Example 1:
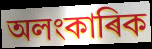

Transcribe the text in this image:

অলংকাৰিক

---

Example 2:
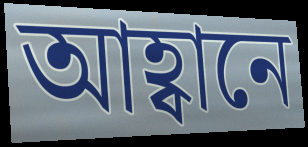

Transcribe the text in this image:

আহ্বানে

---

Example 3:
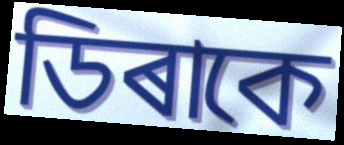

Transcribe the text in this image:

ডিৰাকে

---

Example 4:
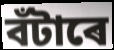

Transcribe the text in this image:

বঁটাৰে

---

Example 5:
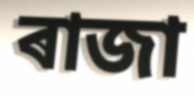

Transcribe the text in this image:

ৰাজা